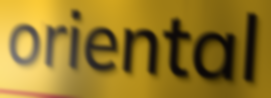
oriental